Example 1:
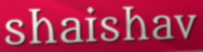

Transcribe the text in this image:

shaishav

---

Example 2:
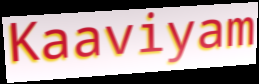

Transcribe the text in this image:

Kaaviyam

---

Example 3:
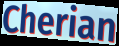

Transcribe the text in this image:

Cherian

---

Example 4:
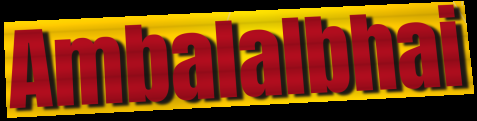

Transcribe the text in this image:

Ambalalbhai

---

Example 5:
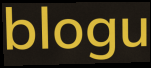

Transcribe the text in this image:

blogu